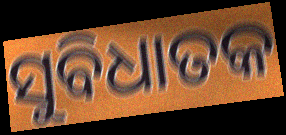
ସୁବିଧାତକ